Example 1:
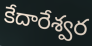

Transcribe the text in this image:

కేదారేశ్వర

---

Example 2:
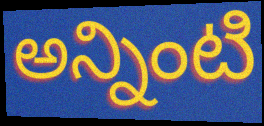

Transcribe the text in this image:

అన్నింటి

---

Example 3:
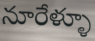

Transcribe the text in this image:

నూరేళ్ళూ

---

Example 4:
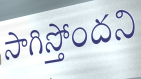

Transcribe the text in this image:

సాగిస్తోందని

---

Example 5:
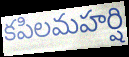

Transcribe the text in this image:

కపిలమహర్షి